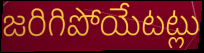
జరిగిపోయేటట్లు